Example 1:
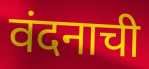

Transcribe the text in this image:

वंदनाची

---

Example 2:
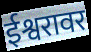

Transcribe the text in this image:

ईश्वरावर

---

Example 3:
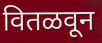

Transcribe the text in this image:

वितळवून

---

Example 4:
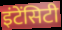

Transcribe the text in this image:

इंटेंसिटी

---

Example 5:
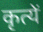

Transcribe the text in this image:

कृत्यें